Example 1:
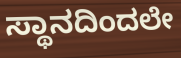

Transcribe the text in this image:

ಸ್ಥಾನದಿಂದಲೇ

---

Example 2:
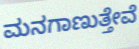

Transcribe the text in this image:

ಮನಗಾಣುತ್ತೇವೆ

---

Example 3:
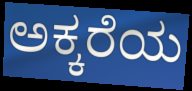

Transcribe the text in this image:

ಅಕ್ಕರೆಯ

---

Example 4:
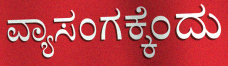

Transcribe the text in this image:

ವ್ಯಾಸಂಗಕ್ಕೆಂದು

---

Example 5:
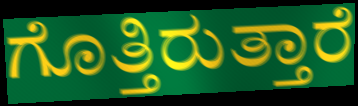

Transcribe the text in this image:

ಗೊತ್ತಿರುತ್ತಾರೆ